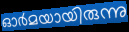
ഓർമയായിരുന്നു